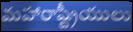
మహారాష్ట్రీయులు